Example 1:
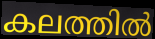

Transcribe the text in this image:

കലത്തിൽ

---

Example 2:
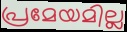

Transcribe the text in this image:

പ്രമേയമില്ല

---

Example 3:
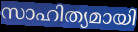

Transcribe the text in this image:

സാഹിത്യമായി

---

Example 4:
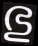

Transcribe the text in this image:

ഭു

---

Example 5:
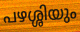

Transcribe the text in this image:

പഴശ്ശിയും